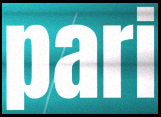
pari